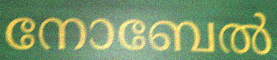
നോബേൽ